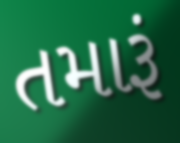
તમારૂં